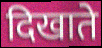
दिखाते